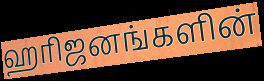
ஹரிஜனங்களின்